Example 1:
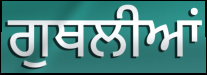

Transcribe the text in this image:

ਗੁਥਲੀਆਂ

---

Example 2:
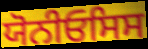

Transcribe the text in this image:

ਯੋਨੀਓਸਿਸ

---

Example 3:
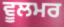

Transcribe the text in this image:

ਵੂਲਮਰ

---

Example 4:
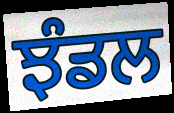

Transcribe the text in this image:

ਝੰਡਲ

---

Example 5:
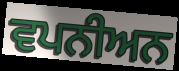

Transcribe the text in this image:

ਵਪਨੀਅਨ